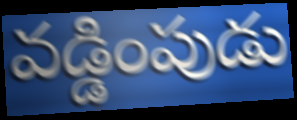
వడ్డింపుడు